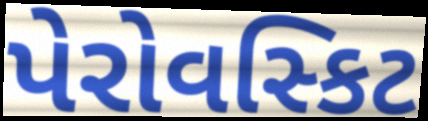
પેરોવસ્કિટ